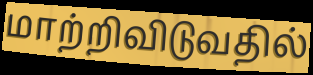
மாற்றிவிடுவதில்